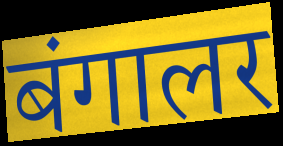
बंगालर